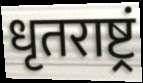
धृतराष्ट्रं